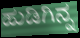
ಹುಡಿಗಿನ್ನ